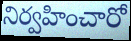
నిర్వహించారో